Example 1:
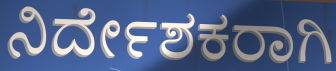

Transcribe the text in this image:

ನಿರ್ದೇಶಕರಾಗಿ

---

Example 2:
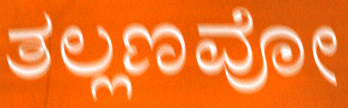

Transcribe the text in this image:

ತಲ್ಲಣವೋ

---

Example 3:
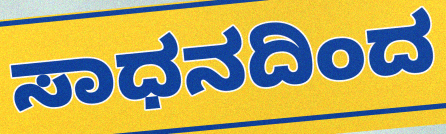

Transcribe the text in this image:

ಸಾಧನದಿಂದ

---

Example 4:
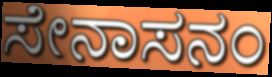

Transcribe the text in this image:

ಸೇನಾಸನಂ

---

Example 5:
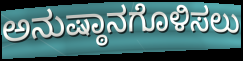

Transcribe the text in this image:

ಅನುಷ್ಠಾನಗೊಳಿಸಲು